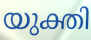
യുക്തി